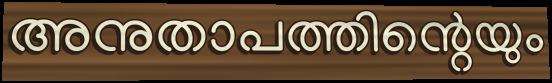
അനുതാപത്തിന്റെയും